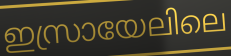
ഇസ്രായേലിലെ